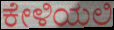
ಕೇಳಿಯಲಿ